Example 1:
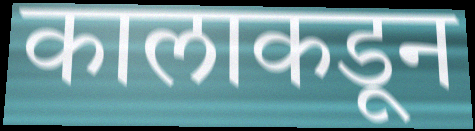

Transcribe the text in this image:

कालाकडून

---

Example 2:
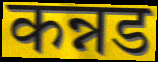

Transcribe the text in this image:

कन्नड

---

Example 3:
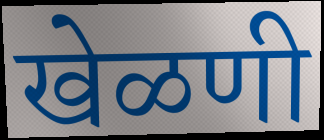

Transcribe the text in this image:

खेळणी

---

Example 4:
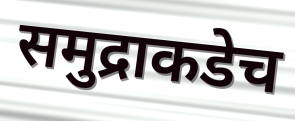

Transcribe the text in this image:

समुद्राकडेच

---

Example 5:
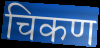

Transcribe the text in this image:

चिकण